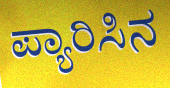
ಪ್ಯಾರಿಸಿನ